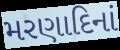
મરણાદિનાં